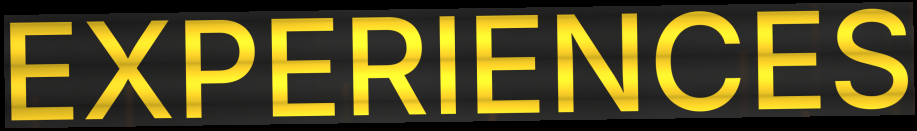
EXPERIENCES